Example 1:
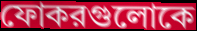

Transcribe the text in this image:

ফোকরগুলোকে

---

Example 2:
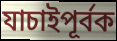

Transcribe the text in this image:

যাচাইপূর্বক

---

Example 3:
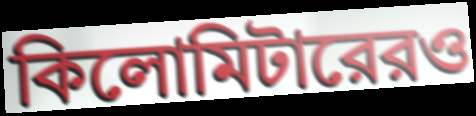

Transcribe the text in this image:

কিলোমিটারেরও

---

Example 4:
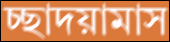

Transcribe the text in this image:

চ্ছাদয়ামাস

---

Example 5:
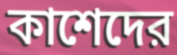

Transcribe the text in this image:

কাশেদের